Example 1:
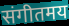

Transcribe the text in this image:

संगीतमय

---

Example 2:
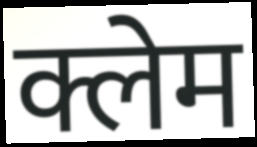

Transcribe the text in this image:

क्लेम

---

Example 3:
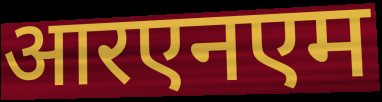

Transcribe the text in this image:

आरएनएम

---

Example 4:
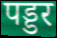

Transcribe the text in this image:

पड्डर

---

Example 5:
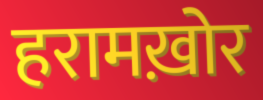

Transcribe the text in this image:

हरामख़ोर